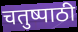
चतुष्पाठी